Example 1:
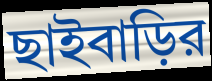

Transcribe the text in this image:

ছাইবাড়ির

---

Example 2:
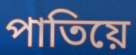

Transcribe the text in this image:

পাতিয়ে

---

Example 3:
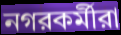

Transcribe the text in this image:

নগরকর্মীরা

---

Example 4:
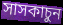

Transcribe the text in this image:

সাসকাচুন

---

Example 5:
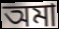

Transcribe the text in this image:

অমা